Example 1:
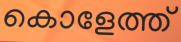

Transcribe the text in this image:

കൊളേത്ത്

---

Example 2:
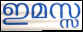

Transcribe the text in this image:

ഇമസ്സ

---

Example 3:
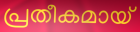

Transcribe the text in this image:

പ്രതീകമായ്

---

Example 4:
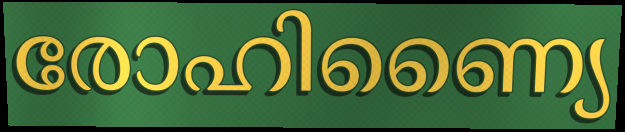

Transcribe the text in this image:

രോഹിണ്യൈ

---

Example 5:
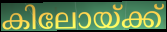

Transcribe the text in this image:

കിലോയ്ക്ക്